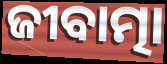
ଜୀବାତ୍ମା